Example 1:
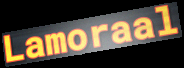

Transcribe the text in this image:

Lamoraal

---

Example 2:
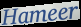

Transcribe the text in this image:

Hameer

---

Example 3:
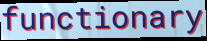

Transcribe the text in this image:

functionary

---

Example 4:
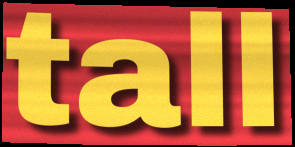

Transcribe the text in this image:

tall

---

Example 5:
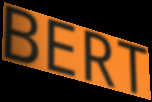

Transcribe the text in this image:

BERT